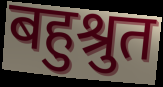
बहुश्रुत